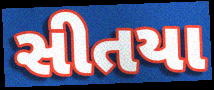
સીતયા